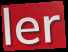
ler